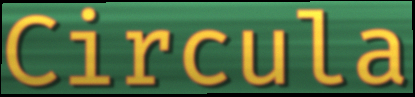
Circula